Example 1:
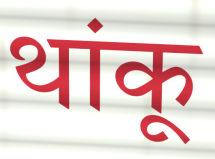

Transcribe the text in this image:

थांकू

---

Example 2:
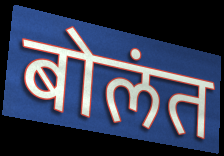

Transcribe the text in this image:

बोलंत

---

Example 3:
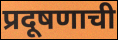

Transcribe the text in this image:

प्रदूषणाची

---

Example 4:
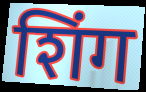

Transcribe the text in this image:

शिंग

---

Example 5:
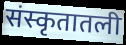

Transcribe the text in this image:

संस्कृतातली